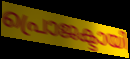
പ്രൊജക്ടായി